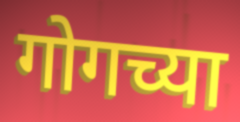
गोगच्या